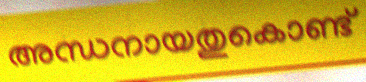
അന്ധനായതുകൊണ്ട്